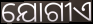
ଯୋଗୀଏ